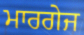
ਮਾਰਗੇਜ